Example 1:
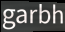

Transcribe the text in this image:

garbh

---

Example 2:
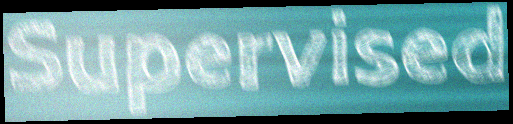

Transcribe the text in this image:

Supervised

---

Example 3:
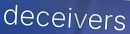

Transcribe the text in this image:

deceivers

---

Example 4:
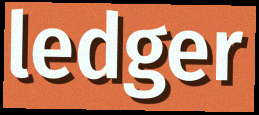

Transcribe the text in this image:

ledger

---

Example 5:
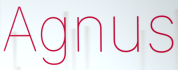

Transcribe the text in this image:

Agnus